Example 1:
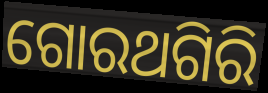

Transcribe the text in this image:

ଗୋରଥଗିରି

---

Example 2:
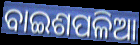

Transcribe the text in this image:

ବାଇଶପଳିଆ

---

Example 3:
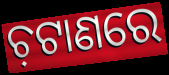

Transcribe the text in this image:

ଚ଼ଟାଣରେ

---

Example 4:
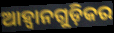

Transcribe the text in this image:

ଆହ୍ଵାନଗୁଡ଼ିକର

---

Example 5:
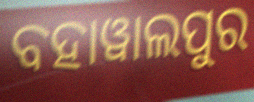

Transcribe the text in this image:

ବହାୱାଲପୁର